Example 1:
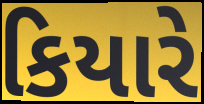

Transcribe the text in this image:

કિયારે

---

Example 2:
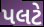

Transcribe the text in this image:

પલટે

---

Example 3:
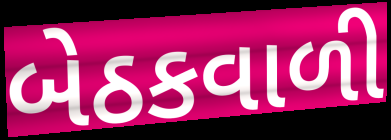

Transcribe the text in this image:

બેઠકવાળી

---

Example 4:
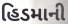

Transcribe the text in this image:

હિડમાની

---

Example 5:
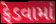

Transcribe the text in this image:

ફેડવામાં